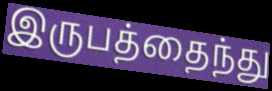
இருபத்தைந்து